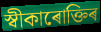
স্বীকাৰোক্তিৰ